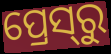
ପ୍ରେସ୍‌ରୁ